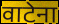
वाटेना